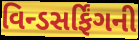
વિન્ડસર્ફિંગની